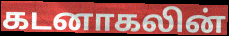
கடனாகலின்